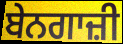
ਬੇਨਗਾਜ਼ੀ